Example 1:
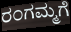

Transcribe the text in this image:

ರಂಗಮ್ಮಗೆ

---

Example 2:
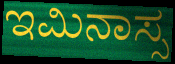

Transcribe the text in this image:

ಇಮಿನಾಸ್ಸ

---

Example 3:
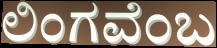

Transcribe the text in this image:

ಲಿಂಗವೆಂಬ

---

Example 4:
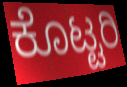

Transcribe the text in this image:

ಕೊಟ್ಟರಿ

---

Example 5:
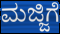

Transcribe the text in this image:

ಮಜ್ಜಿಗೆ